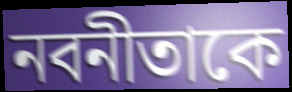
নবনীতাকে